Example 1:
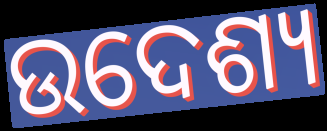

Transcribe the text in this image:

ଉଦେଶ୍ୟ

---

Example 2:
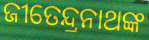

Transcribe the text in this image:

ଜୀତେନ୍ଦ୍ରନାଥଙ୍କ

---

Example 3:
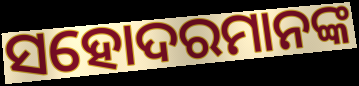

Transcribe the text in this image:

ସହୋଦରମାନଙ୍କ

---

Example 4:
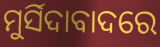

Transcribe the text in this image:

ମୁର୍ସିଦାବାଦରେ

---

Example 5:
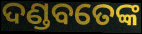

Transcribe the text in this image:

ଦଣ୍ଡବତେଙ୍କ